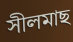
সীলমাছ